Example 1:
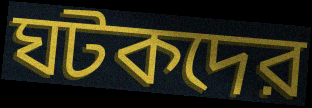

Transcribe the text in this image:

ঘটকদের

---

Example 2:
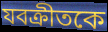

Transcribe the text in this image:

যবক্রীতকে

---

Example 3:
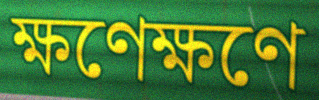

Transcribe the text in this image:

ক্ষণেক্ষণে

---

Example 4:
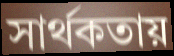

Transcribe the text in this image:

সার্থকতায়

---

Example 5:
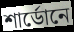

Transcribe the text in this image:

শার্ডোনে